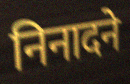
निनादने